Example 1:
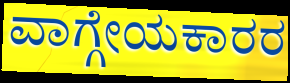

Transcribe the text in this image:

ವಾಗ್ಗೇಯಕಾರರ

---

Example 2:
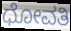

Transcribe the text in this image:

ಧೋವತಿ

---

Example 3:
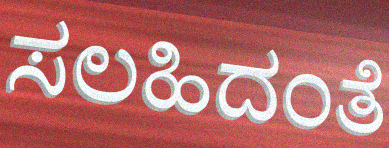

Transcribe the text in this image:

ಸಲಹಿದಂತೆ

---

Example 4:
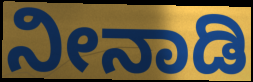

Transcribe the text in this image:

ನೀನಾಡಿ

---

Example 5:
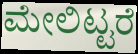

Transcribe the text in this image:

ಮೇಲಿಟ್ಟರೆ